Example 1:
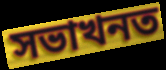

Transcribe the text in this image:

সভাখনত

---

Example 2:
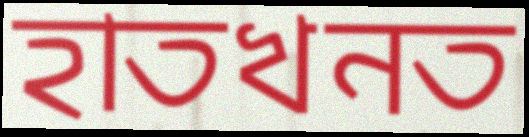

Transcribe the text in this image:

হাতখনত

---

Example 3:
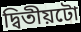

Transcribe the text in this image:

দ্বিতীয়টো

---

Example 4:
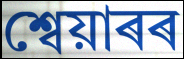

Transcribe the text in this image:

শ্বেয়াৰৰ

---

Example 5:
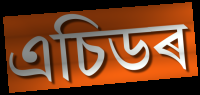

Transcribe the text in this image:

এচিডৰ